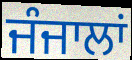
ਜੰਜਾਲਾਂ